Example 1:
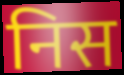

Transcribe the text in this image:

निस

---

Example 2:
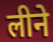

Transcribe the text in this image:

लीने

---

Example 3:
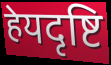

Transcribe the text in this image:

हेयदृष्टि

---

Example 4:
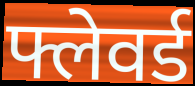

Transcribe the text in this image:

फ्लेवर्ड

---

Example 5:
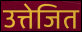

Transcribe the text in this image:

उत्तेजित